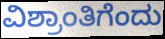
ವಿಶ್ರಾಂತಿಗೆಂದು